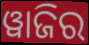
ୱାଜିର